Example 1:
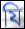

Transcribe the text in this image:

যি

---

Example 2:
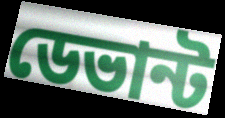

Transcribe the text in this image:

ডেভান্ট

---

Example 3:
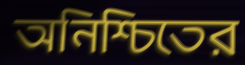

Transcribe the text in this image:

অনিশ্চিতের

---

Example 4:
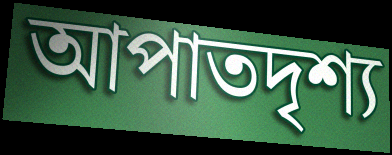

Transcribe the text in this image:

আপাতদৃশ্য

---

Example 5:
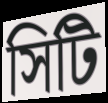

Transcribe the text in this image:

সিটি